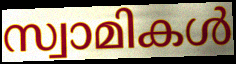
സ്വാമികൾ